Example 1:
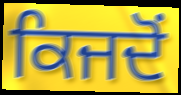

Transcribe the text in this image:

ਕਿਜਦੋਂ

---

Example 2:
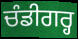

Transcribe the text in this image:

ਚੰਡੀਗਰ੍ਹ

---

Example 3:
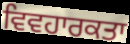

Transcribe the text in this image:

ਵਿਵਹਾਰਕਤਾ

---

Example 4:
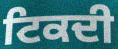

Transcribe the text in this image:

ਟਿਕਦੀ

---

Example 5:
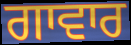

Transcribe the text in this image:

ਗਾਵਾਰ